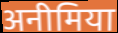
अनीमिया